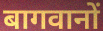
बागवानों